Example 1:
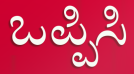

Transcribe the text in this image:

ಒಪ್ಪಿಸಿ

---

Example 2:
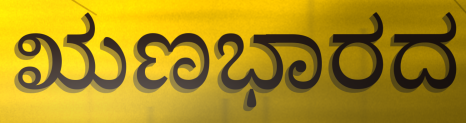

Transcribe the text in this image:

ಋಣಭಾರದ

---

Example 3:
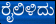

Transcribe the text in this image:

ರೈಲಿಳಿದು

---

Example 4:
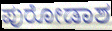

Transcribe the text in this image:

ಪುರೋಡಾಶ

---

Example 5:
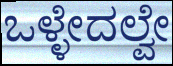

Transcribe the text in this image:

ಒಳ್ಳೇದಲ್ವೇ